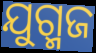
ଯୁଗ୍ମଜ